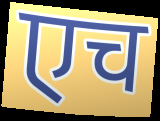
एच